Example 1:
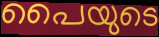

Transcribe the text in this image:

പൈയുടെ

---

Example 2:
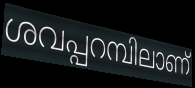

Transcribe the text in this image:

ശവപ്പറമ്പിലാണ്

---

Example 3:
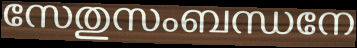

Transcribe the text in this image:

സേതുസംബന്ധനേ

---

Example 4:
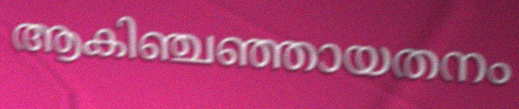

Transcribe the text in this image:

ആകിഞ്ചഞ്ഞായതനം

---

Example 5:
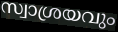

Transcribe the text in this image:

സ്വാശ്രയവും